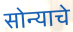
सोन्याचे